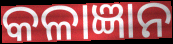
କଳାଜ୍ଞାନ